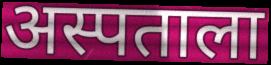
अस्पताला